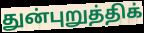
துன்புறுத்திக்